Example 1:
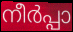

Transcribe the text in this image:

നീർപ്പാ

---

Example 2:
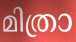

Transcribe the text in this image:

മിത്രാ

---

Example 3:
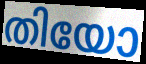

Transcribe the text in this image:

തിയോ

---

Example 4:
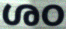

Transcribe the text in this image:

ശഠ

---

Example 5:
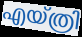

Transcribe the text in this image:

എയ്ത്രി